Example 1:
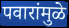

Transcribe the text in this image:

पवारांमुळे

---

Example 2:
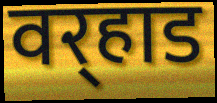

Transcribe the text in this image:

वर्‍हाड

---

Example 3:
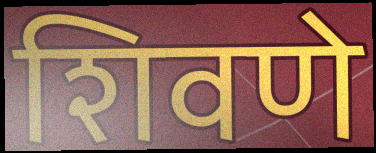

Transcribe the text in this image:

शिवणे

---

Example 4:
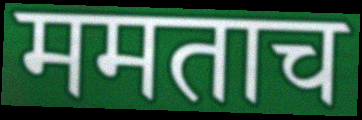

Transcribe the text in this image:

ममताच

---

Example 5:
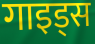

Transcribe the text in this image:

गाइड्स